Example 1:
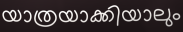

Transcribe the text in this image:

യാത്രയാക്കിയാലും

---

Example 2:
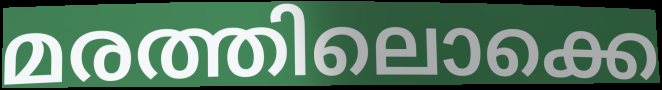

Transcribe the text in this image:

മരത്തിലൊക്കെ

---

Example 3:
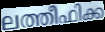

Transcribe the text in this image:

ലത്തീഫിക്ക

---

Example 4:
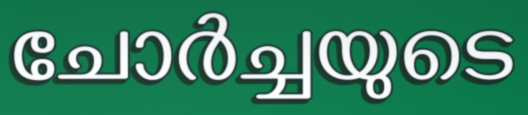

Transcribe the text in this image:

ചോർച്ചയുടെ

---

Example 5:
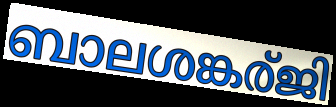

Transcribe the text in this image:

ബാലശങ്കര്ജി